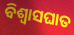
ବିଶ୍ବାସଘାତ